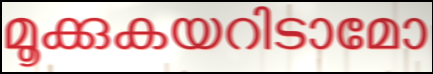
മൂക്കുകയറിടാമോ